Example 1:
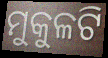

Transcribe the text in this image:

ମୁକୁଳଟି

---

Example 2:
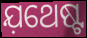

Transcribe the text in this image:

ଯ଼ଥେଷ୍ଟ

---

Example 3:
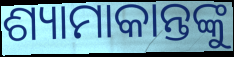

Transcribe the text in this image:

ଶ୍ୟାମାକାନ୍ତଙ୍କୁ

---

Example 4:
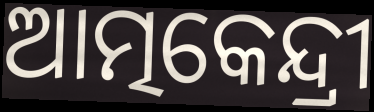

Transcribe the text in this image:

ଆତ୍ମକେନ୍ଦ୍ରୀ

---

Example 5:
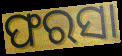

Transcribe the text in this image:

ଫରସା